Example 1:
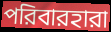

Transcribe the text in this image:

পরিবারহারা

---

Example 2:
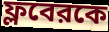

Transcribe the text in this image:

ফ্লবেরকে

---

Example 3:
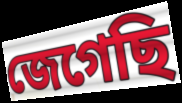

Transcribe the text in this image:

জেগেছি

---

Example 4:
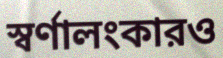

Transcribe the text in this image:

স্বর্ণালংকারও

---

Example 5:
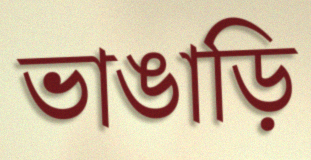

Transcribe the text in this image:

ভাঙাড়ি